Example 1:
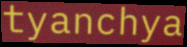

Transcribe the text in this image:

tyanchya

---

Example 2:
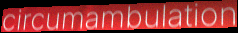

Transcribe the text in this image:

circumambulation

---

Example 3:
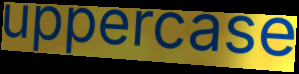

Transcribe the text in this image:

uppercase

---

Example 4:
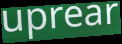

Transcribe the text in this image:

uprear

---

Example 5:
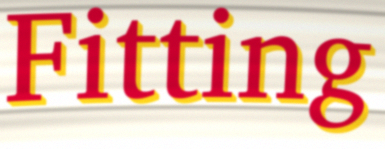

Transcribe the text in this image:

Fitting